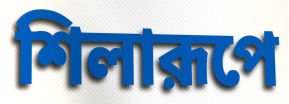
শিলারূপে